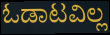
ಓಡಾಟವಿಲ್ಲ